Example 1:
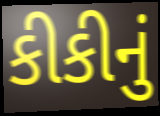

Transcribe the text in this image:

કીકીનું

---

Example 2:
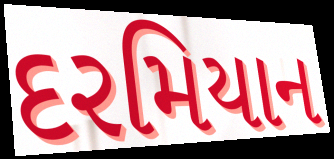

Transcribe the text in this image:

દરમિયાન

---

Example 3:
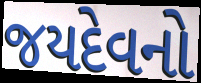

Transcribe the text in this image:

જયદેવનો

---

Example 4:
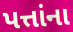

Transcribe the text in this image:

પત્તાંના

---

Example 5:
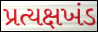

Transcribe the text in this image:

પ્રત્યક્ષખંડ